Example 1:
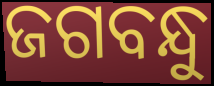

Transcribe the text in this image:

ଜଗବନ୍ଧୁ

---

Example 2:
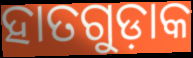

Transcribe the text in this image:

ହାତଗୁଡ଼ାକ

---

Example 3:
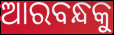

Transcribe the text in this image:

ଆରବନ୍ଧକୁ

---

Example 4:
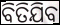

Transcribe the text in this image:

ବିତିଯିବ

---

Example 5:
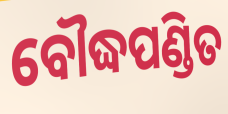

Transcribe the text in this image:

ବୌଦ୍ଧପଣ୍ଡିତ